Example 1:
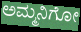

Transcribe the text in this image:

ಅಮ್ಮನಿಗೋ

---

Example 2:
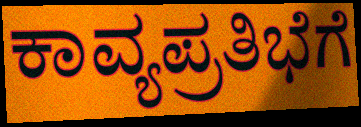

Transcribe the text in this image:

ಕಾವ್ಯಪ್ರತಿಭೆಗೆ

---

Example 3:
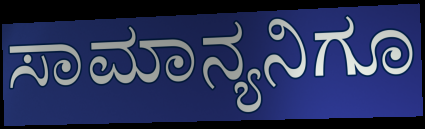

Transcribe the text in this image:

ಸಾಮಾನ್ಯನಿಗೂ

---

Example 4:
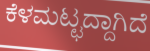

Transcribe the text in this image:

ಕೆಳಮಟ್ಟದ್ದಾಗಿದೆ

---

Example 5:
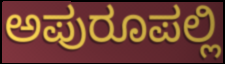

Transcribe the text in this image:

ಅಪುರೂಪಲ್ಲಿ